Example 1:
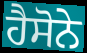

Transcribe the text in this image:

ਹੈਸੋਨੇ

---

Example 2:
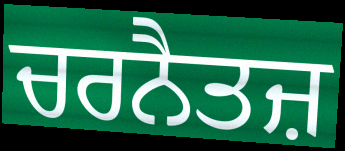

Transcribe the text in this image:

ਚਰਨੈਤਜ਼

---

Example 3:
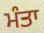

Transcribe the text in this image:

ਮੰਤਾ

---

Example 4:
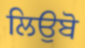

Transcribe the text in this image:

ਲਿਉਬੋ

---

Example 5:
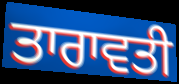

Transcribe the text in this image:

ਤਾਰਾਵਤੀ